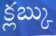
క్లబ్కు